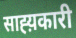
साह्य़कारी